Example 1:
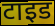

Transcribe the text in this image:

टाइड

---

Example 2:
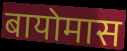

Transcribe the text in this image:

बायोमास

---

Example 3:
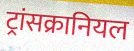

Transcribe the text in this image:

ट्रांसक्रानियल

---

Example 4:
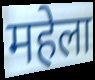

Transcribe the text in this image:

महेला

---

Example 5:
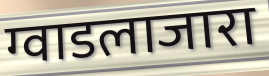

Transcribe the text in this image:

ग्वाडलाजारा